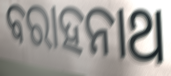
ବରାହନାଥ